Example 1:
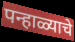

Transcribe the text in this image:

पन्हाळ्याचे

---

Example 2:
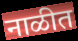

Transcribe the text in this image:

नाळीत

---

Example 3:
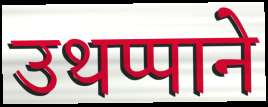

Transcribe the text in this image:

उथप्पाने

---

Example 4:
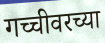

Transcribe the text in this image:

गच्चीवरच्या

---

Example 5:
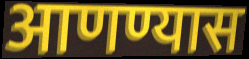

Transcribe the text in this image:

आणण्यास